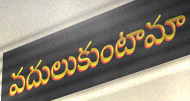
వదులుకుంటామా